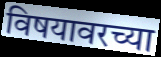
विषयावरच्या